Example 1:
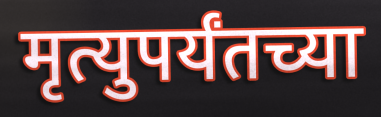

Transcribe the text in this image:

मृत्युपर्यंतच्या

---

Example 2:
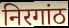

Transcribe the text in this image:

निरगांठ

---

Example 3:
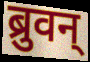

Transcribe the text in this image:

ब्रुवन्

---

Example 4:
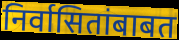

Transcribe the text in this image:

निर्वासितांबाबत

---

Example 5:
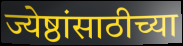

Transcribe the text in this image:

ज्येष्ठांसाठीच्या